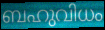
ബഹുവിധം